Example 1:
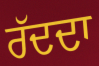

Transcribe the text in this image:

ਰੱਦਦਾ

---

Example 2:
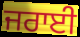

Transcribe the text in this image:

ਜਰਾਈ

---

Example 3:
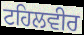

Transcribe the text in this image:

ਟਹਿਲਵੀਰ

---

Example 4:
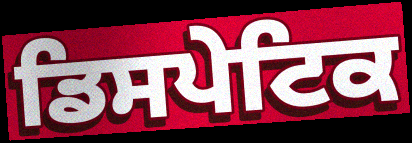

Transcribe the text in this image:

ਡਿਸਪੇਟਿਕ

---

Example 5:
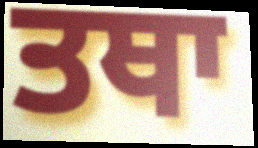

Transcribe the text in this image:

ਤਥਾ